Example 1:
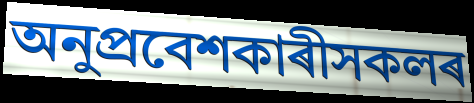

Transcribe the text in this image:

অনুপ্ৰবেশকাৰীসকলৰ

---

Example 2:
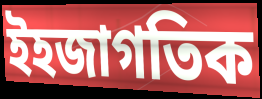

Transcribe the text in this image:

ইহজাগতিক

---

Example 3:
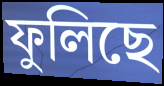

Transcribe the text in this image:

ফুলিছে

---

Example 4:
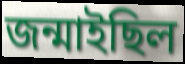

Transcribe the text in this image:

জন্মাইছিল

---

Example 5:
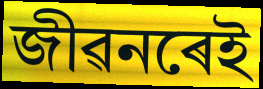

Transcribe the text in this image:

জীৱনৰেই